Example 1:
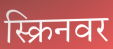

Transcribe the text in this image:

स्क्रिनवर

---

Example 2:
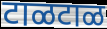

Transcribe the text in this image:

टाळटाळ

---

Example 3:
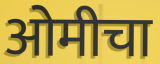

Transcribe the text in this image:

ओमीचा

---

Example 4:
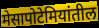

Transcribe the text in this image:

मेसापोटेमियांतील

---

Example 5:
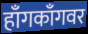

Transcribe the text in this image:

हाँगकाँगवर